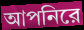
আপনিরে